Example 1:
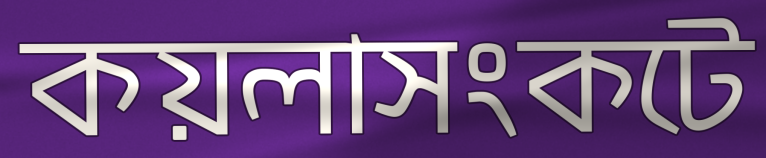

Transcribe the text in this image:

কয়লাসংকটে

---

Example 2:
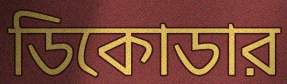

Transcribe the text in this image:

ডিকোডার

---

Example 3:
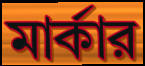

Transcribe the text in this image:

মার্কার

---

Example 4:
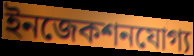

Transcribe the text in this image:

ইনজেকশনযোগ্য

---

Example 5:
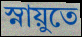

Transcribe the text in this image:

স্নায়ুতে